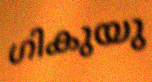
ഗികുയു